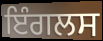
ਇੰਗਲਸ